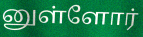
னுள்ளோர்